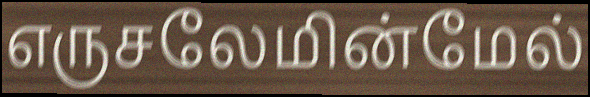
எருசலேமின்மேல்